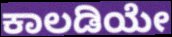
ಕಾಲಡಿಯೇ